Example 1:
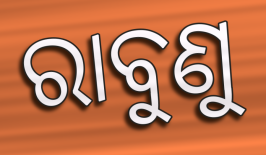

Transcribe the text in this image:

ରାବୁଣୁ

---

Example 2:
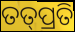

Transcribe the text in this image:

ତତ୍‌ପ୍ରତି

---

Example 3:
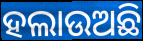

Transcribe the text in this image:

ହଲାଉଅଛି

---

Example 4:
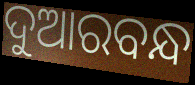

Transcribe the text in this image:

ଦୁଆରବନ୍ଧ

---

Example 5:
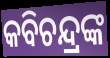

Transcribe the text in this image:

କବିଚନ୍ଦ୍ରଙ୍କ